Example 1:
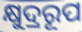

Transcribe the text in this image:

କ୍ଷୁଦ୍ରରୂପ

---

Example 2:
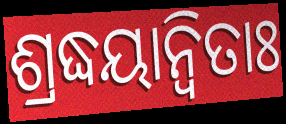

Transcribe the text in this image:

ଶ୍ରଦ୍ଧୟାନ୍ୱିତାଃ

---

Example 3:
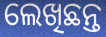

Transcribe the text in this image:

ଲେଖିଛନ୍ତ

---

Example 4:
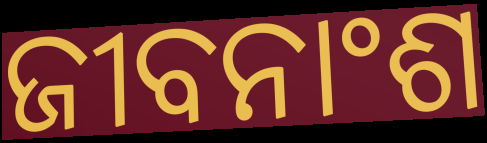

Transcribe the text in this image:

ଜୀବନାଂଶ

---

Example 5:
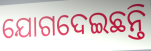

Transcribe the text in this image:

ଯୋଗଦେଇଛନ୍ତି